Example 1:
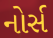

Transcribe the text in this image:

નોર્સ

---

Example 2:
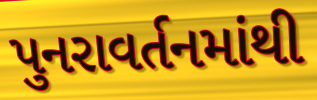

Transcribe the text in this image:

પુનરાવર્તનમાંથી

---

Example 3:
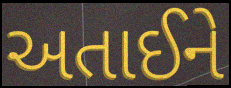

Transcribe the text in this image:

અતાઈને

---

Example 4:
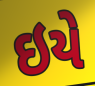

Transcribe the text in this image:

ઇયે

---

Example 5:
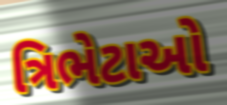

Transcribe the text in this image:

ત્રિભેટાઓ